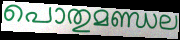
പൊതുമണ്ഡല